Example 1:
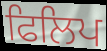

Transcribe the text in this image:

ਫਿਲਿਪ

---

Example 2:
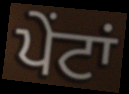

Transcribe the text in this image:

ਪੇਂਟਾਂ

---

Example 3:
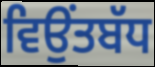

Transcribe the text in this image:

ਵਿਉਂਤਬੱਧ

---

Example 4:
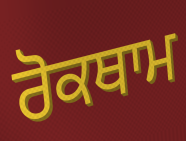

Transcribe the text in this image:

ਰੋਕਥਾਮ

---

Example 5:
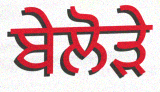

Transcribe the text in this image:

ਬੇਲੋੜੇ